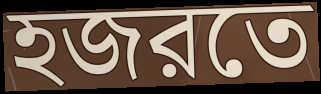
হজরতে